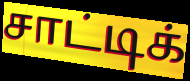
சாட்டிக்